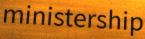
ministership